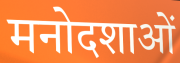
मनोदशाओं